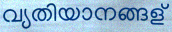
വ്യതിയാനങ്ങള്